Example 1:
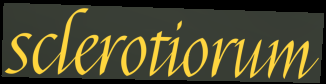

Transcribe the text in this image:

sclerotiorum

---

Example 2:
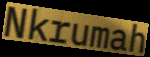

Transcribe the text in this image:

Nkrumah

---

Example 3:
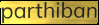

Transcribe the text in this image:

parthiban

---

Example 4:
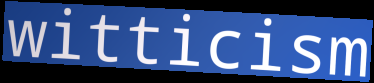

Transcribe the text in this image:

witticism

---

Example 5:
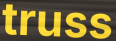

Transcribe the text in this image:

truss